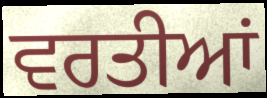
ਵਰਤੀਆਂ